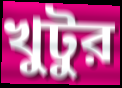
খুটুর